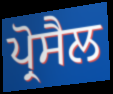
ਪ੍ਰੋਸੈਲ